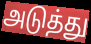
அடுத்து